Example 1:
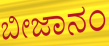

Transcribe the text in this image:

ಬೀಜಾನಂ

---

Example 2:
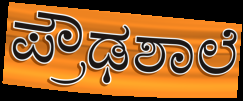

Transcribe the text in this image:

ಪ್ರೌಢಶಾಲೆ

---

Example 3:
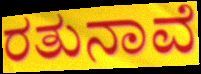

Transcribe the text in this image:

ರತುನಾವೆ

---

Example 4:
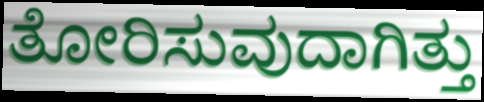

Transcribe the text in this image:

ತೋರಿಸುವುದಾಗಿತ್ತು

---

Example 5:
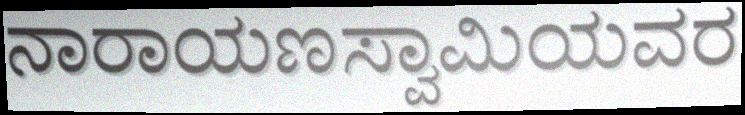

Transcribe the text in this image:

ನಾರಾಯಣಸ್ವಾಮಿಯವರ